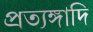
প্রত্যঙ্গাদি